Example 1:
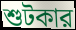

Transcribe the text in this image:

শুটকার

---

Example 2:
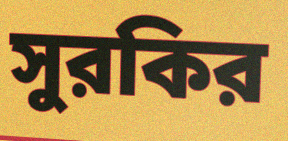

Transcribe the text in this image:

সুরকির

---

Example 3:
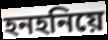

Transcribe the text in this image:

হনহনিয়ে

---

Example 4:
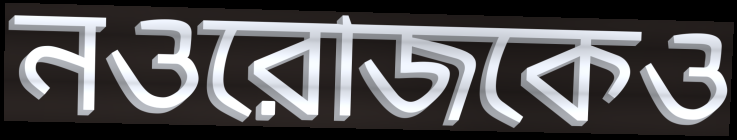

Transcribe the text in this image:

নওরোজকেও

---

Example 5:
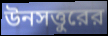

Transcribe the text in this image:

উনসত্তুরের